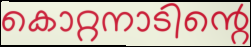
കൊറ്റനാടിന്റെ